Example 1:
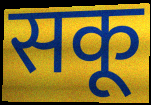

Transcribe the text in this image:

सकू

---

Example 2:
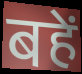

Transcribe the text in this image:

बहें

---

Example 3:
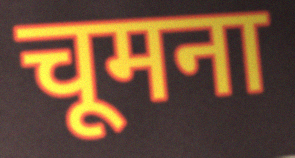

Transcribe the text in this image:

चूमना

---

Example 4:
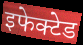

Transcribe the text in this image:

इफेक्टेड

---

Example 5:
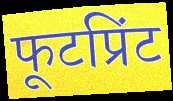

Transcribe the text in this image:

फूटप्रिंट